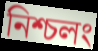
নিশ্চলং